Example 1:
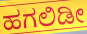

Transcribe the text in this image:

ಹಗಲಿಡೀ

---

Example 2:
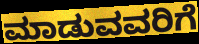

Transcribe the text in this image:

ಮಾಡುವವರಿಗೆ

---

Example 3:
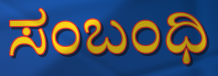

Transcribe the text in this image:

ಸಂಬಂಧಿ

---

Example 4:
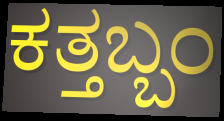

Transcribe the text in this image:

ಕತ್ತಬ್ಬಂ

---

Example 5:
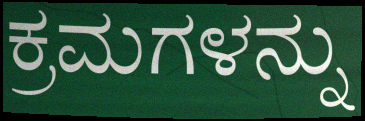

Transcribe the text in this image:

ಕ್ರಮಗಳನ್ನು